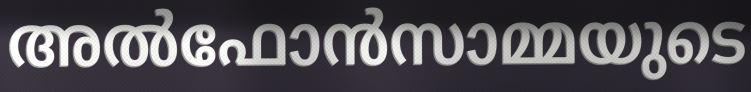
അൽഫോൻസാമ്മയുടെ